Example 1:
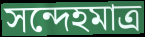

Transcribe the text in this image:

সন্দেহমাত্র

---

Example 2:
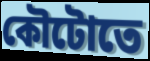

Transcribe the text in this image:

কৌটোতে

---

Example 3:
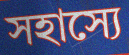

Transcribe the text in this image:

সহাস্যে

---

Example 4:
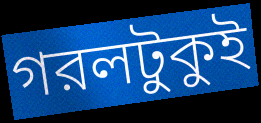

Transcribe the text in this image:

গরলটুকুই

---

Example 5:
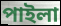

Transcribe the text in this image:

পাইলা